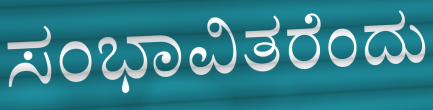
ಸಂಭಾವಿತರೆಂದು